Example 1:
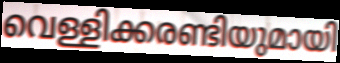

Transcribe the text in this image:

വെള്ളിക്കരണ്ടിയുമായി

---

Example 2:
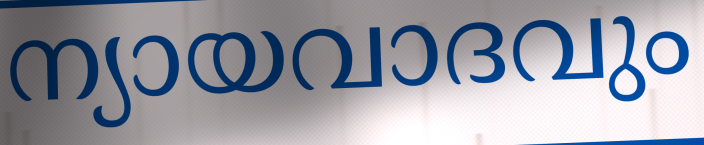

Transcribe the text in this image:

ന്യായവാദവും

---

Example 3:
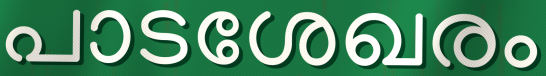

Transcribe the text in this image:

പാടശേഖരം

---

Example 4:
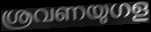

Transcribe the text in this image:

ശ്രവണയുഗള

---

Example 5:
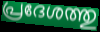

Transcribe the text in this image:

പ്രദേശത്തു